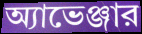
অ্যাভেঞ্জার